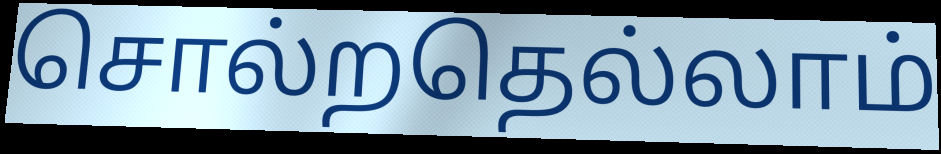
சொல்றதெல்லாம்